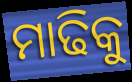
ମାଢିକୁ